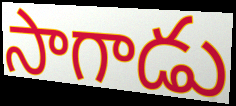
సాగాడు